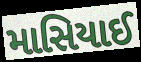
માસિયાઈ